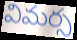
విమర్స